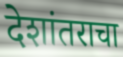
देशांतराचा